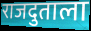
राजदुताला